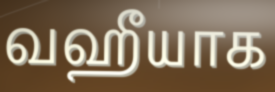
வஹீயாக